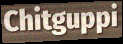
Chitguppi